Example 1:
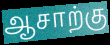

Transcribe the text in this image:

ஆசாற்கு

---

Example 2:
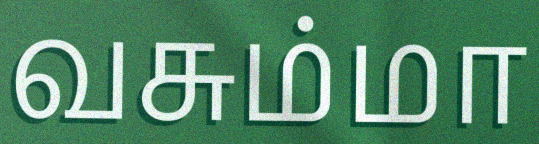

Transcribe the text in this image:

வசும்மா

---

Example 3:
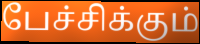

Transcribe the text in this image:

பேச்சிக்கும்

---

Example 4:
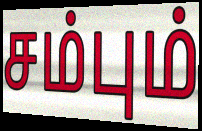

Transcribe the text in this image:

சம்பும்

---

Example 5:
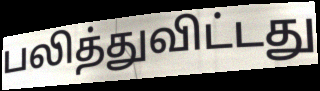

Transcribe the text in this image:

பலித்துவிட்டது